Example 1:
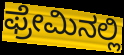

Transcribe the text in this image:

ಫ್ರೇಮಿನಲ್ಲಿ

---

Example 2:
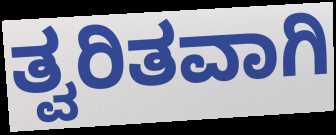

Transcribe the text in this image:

ತ್ವರಿತವಾಗಿ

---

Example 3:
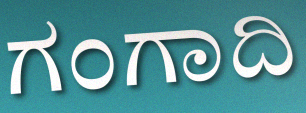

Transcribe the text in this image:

ಗಂಗಾದಿ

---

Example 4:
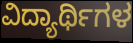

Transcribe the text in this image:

ವಿದ್ಯಾರ್ಥಿಗಳ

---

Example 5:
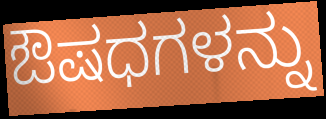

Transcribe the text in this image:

ಔಷಧಗಳನ್ನು